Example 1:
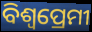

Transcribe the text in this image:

ବିଶ୍ଵପ୍ରେମୀ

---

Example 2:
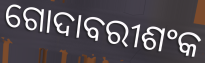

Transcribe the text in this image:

ଗୋଦାବରୀଶଂକ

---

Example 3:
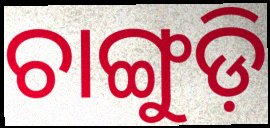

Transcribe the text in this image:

ଚାଙ୍ଗୁଡ଼ି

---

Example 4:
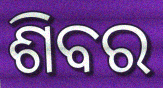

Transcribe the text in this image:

ଶିବର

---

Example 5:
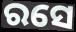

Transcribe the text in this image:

ରସେ